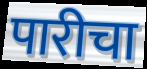
पारीचा